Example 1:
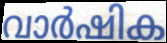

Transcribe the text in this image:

വാർഷിക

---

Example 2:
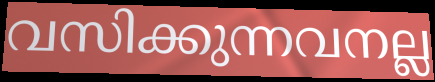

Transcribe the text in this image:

വസിക്കുന്നവനല്ല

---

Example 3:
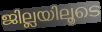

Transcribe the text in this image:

ജില്ലയിലൂടെ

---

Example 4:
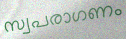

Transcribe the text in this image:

സ്വപരാഗണം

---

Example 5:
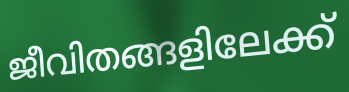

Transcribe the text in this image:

ജീവിതങ്ങളിലേക്ക്